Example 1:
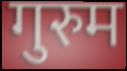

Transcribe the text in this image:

गुरुम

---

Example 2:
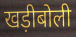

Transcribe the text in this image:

खड़ीबोली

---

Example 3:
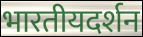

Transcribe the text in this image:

भारतीयदर्शन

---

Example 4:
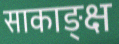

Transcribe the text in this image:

साकाङ्क्ष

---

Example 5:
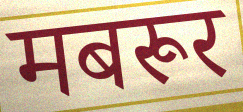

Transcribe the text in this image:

मबरूर